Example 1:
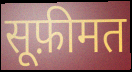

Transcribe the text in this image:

सूफ़ीमत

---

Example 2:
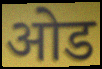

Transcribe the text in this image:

ओड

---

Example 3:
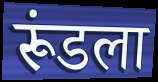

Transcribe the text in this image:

रूंडला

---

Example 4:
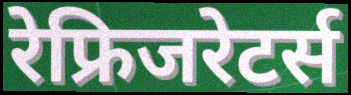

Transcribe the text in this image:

रेफ्रिजरेटर्स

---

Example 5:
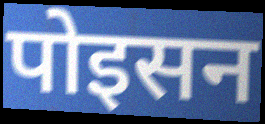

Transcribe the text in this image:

पोइसन